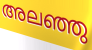
അലഞ്ഞു